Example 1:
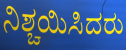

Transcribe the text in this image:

ನಿಶ್ಚಯಿಸಿದರು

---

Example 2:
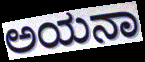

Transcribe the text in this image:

ಅಯನಾ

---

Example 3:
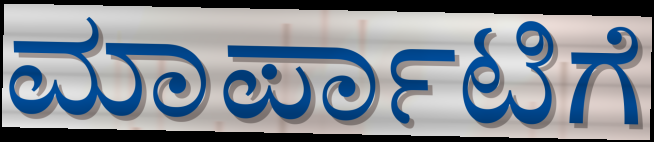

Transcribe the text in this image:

ಮಾರ್ಪಾಟಿಗೆ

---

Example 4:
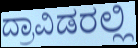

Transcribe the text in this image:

ದ್ರಾವಿಡರಲ್ಲಿ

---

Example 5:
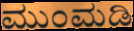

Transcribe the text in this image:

ಮುಂಮಡಿ